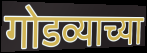
गोडव्याच्या